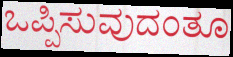
ಒಪ್ಪಿಸುವುದಂತೂ